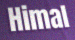
Himal